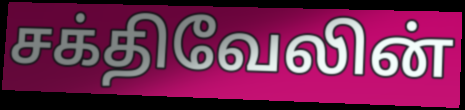
சக்திவேலின்